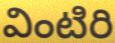
వింటిరి